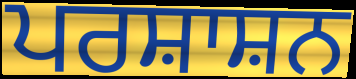
ਪਰਸ਼ਾਸ਼ਨ